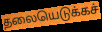
தலையெடுக்கச்